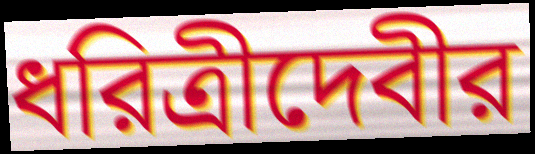
ধরিত্রীদেবীর